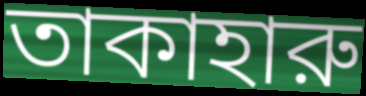
তাকাহারু